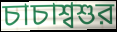
চাচাশ্বশুর